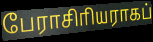
பேராசிரியராகப்